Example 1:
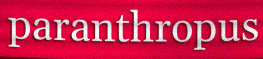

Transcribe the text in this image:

paranthropus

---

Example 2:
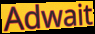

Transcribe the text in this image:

Adwait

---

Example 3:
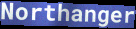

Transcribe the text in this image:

Northanger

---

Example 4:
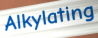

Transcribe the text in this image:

Alkylating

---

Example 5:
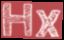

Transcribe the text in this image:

Hx